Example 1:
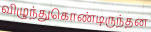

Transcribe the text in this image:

விழுந்துகொண்டிருந்தன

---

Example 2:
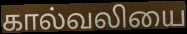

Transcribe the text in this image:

கால்வலியை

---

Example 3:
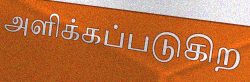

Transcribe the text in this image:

அளிக்கப்படுகிற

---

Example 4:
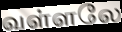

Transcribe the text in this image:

வள்ளலே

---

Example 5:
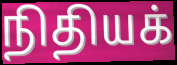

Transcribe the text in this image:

நிதியக்